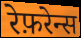
रेफ़रेन्स